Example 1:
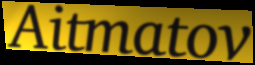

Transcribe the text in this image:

Aitmatov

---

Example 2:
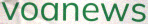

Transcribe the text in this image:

voanews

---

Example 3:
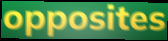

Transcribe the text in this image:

opposites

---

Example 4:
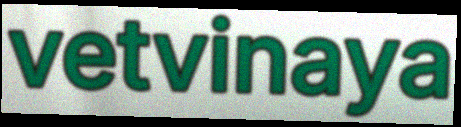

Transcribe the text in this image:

vetvinaya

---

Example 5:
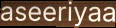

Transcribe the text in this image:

aseeriyaa